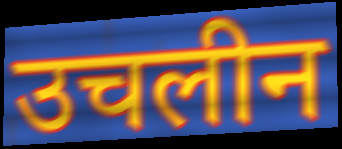
उचलीन